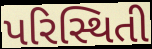
પરિસ્થિતી